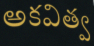
అకవిత్వ